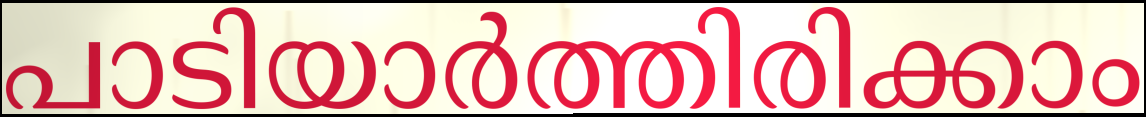
പാടിയാർത്തിരിക്കാം